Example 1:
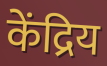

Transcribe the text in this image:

केंद्रिय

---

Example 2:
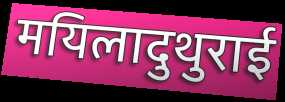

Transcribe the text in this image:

मयिलादुथुराई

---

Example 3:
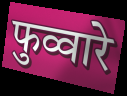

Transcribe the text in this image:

फुव्वारे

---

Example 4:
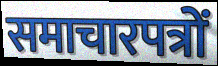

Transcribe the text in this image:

समाचारपत्रों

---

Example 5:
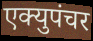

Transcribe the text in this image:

एक्युपंचर